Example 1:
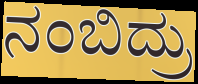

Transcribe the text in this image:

ನಂಬಿದ್ರು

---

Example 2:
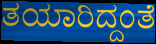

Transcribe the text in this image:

ತಯಾರಿದ್ದಂತೆ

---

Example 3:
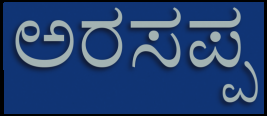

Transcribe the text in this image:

ಅರಸಪ್ಪ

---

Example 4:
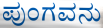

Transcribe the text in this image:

ಪುಂಗವನು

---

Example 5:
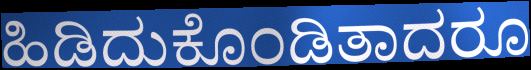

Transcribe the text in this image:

ಹಿಡಿದುಕೊಂಡಿತಾದರೂ